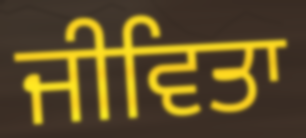
ਜੀਵਿਤਾ